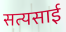
सत्यसाई